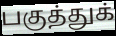
பகுத்துக்